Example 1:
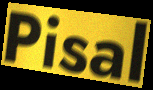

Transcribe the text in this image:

Pisal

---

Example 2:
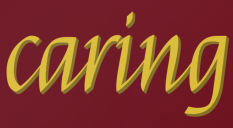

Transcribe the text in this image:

caring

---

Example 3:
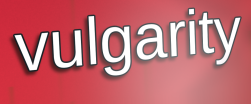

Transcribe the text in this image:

vulgarity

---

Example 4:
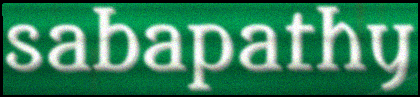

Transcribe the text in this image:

sabapathy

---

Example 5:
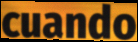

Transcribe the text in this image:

cuando